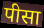
पीसा